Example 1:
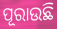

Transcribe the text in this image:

ପୂରାଉଛି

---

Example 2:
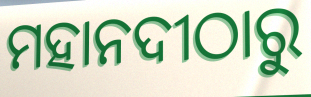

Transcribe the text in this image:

ମହାନଦୀଠାରୁ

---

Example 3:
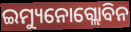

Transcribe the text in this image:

ଇମ୍ୟୁନୋଗ୍ଲୋବିନ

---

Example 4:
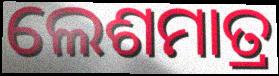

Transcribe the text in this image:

ଲେଶମାତ୍ର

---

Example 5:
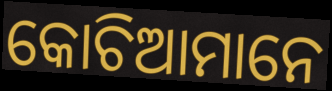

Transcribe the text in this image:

କୋଚିଆମାନେ